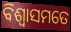
ବିଶ୍ୱାସମତେ